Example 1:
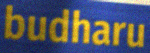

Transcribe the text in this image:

budharu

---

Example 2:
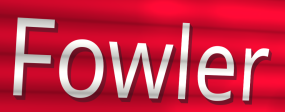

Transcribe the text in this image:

Fowler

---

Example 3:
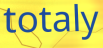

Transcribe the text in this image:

totaly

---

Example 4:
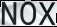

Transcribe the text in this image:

NOX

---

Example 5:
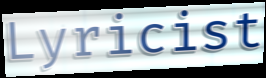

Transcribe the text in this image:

Lyricist